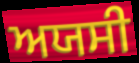
ਅਯਸੀ